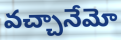
వచ్చానేమో